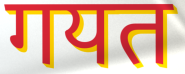
गयत